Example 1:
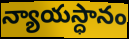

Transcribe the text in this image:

న్యాయస్ధానం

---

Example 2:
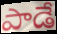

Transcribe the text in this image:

పాడే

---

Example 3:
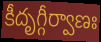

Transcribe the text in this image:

కీదృగ్గీర్వాణః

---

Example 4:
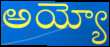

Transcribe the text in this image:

అయ్యో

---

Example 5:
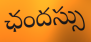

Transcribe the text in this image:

ఛందస్సు